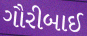
ગૌરીબાઈ